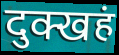
दुक्खहं